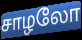
சாழலோ